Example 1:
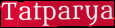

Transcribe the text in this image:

Tatparya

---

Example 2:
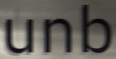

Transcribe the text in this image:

unb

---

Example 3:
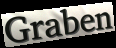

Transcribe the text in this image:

Graben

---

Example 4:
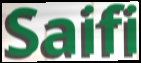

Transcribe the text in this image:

Saifi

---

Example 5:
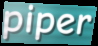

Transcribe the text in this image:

piper